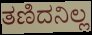
ತಣಿದನಿಲ್ಲ